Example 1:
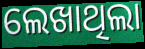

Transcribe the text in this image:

ଲେଖାଥିଲା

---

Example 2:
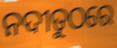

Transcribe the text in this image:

ନଦୀତୁଠରେ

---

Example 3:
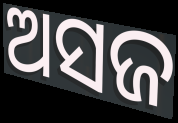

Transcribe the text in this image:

ଅସଜ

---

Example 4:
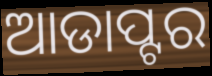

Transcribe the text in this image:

ଆଡାପ୍ଟର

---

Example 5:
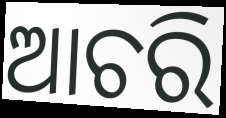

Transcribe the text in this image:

ଆଚରି